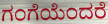
ಗಂಗೆಯೆಂದರೆ